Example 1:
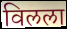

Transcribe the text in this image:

विलला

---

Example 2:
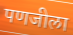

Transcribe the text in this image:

पणजीला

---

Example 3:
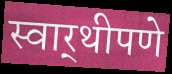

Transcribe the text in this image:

स्वार्थीपणे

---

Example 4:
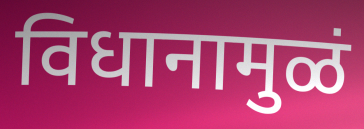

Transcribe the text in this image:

विधानामुळं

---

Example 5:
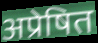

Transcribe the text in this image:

अप्रेषित